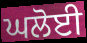
ਘਲੋਈ